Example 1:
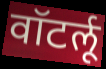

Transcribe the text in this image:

वॉटर्लू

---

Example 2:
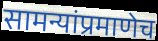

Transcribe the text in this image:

सामन्यांप्रमाणेच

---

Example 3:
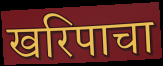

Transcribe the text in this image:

खरिपाचा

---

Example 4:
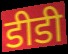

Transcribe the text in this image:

डीडी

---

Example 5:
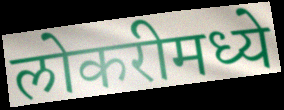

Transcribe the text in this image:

लोकरीमध्ये